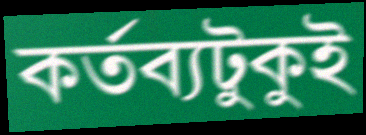
কর্তব্যটুকুই